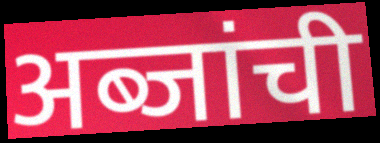
अब्जांची